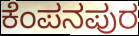
ಕೆಂಪನಪುರ